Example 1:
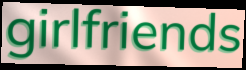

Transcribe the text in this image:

girlfriends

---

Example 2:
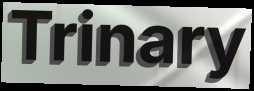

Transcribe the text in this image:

Trinary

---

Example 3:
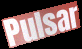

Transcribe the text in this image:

Pulsar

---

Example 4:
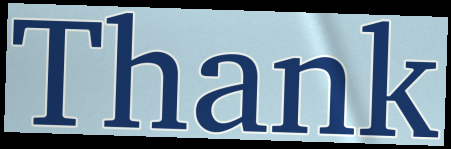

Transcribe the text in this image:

Thank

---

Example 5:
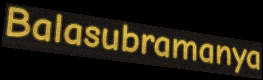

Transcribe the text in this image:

Balasubramanya